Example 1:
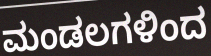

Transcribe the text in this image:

ಮಂಡಲಗಳಿಂದ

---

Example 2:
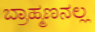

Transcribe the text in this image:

ಬ್ರಾಹ್ಮಣನಲ್ಲ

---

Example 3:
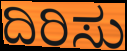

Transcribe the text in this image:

ದಿರಿಸು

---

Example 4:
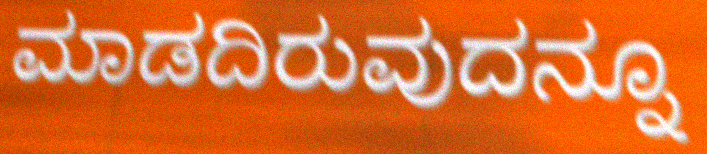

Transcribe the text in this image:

ಮಾಡದಿರುವುದನ್ನೂ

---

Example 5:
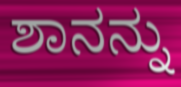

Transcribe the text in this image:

ಶಾನನ್ನು